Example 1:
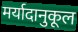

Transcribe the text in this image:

मर्यादानुकूल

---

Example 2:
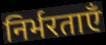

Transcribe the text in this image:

निर्भरताएँ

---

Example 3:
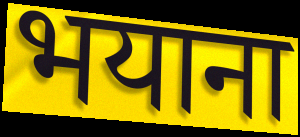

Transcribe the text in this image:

भयाना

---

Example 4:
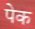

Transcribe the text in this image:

पेक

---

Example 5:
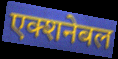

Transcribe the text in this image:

एक्शनेबल